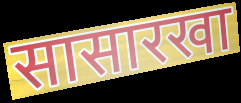
सासारखा